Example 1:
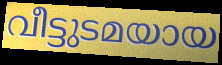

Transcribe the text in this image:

വീട്ടുടമയായ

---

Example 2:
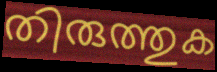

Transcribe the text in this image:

തിരുത്തുക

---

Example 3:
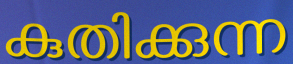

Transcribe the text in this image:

കുതിക്കുന്ന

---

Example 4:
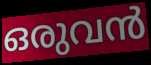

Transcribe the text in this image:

ഒരുവൻ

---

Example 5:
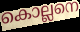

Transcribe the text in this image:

കൊല്ലനെ